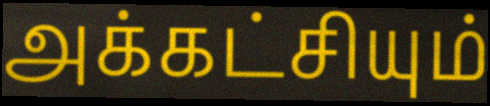
அக்கட்சியும்